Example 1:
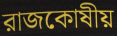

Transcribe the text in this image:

রাজকোষীয়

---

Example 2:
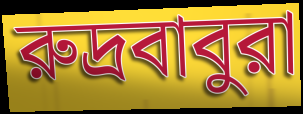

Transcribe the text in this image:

রুদ্রবাবুরা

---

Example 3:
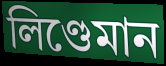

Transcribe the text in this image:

লিণ্ডেমান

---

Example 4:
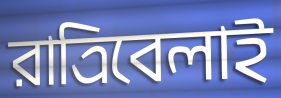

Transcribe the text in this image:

রাত্রিবেলাই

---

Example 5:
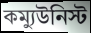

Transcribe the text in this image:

কম্যুউনিস্ট